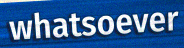
whatsoever